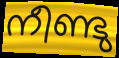
നീണ്ടു